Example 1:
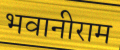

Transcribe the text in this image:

भवानीराम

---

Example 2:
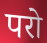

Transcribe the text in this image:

परो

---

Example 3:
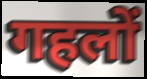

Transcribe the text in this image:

गहलों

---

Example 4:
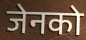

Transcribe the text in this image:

जेनको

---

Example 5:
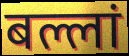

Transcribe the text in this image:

बल्लां